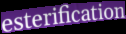
esterification